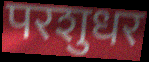
परशुधर